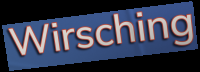
Wirsching